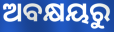
ଅବକ୍ଷୟରୁ